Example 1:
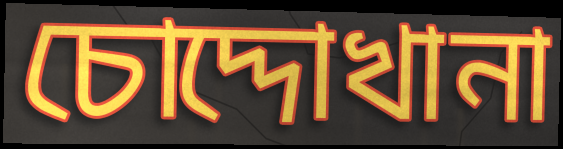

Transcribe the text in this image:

চোদ্দোখানা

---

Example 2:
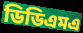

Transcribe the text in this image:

ডিডিএমএ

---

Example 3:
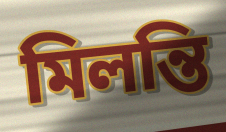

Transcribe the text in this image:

মিলন্তি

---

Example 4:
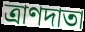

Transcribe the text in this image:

ত্রাণদাতা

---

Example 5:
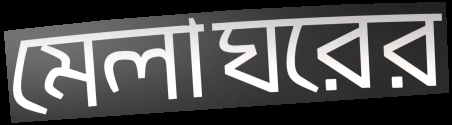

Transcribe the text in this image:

মেলাঘরের